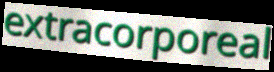
extracorporeal